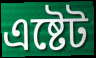
এষ্টেট